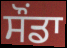
ਸੌਂਡਾ